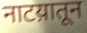
नाटय़ातून